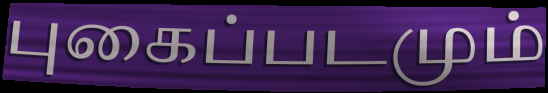
புகைப்படமும்